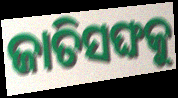
ଜାତିସଙ୍ଘକୁ